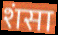
शंसा